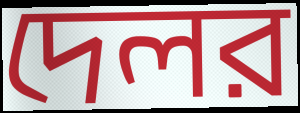
দেলর